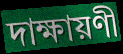
দাক্ষায়ণী